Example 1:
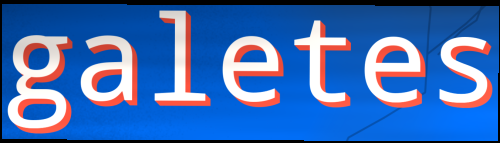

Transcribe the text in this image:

galetes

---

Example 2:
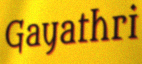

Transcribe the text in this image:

Gayathri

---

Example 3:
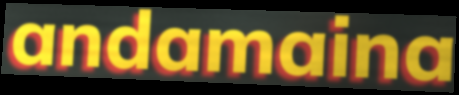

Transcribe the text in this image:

andamaina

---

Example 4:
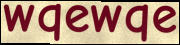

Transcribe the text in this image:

wqewqe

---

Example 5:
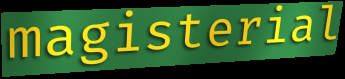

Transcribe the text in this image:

magisterial